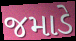
જમાડે